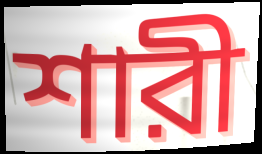
শারী